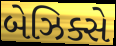
બેઝિક્સે